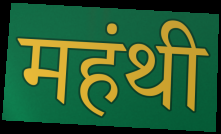
महंथी